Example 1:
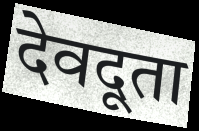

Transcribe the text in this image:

देवदूता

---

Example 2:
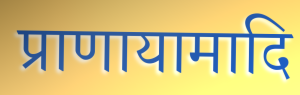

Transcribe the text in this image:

प्राणायामादि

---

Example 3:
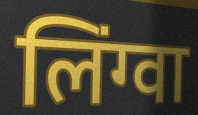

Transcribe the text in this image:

लिंग्वा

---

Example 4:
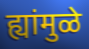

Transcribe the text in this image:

ह्यांमुळे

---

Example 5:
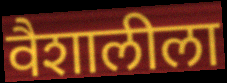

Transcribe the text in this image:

वैशालीला